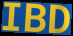
IBD